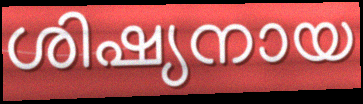
ശിഷ്യനായ